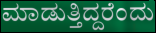
ಮಾಡುತ್ತಿದ್ದರೆಂದು